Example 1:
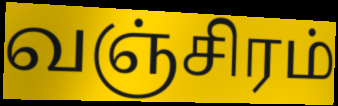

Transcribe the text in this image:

வஞ்சிரம்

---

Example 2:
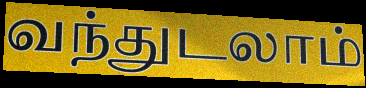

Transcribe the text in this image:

வந்துடலாம்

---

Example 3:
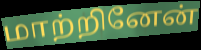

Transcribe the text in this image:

மாற்றினேன்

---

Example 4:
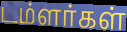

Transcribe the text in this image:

டம்ளர்கள்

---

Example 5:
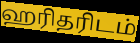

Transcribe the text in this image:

ஹரிதரிடம்